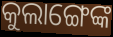
କୁଲାଙ୍ଗେଙ୍କ